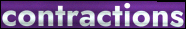
contractions